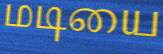
மடியை